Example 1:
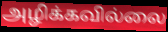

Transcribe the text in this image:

அழிக்கவில்லை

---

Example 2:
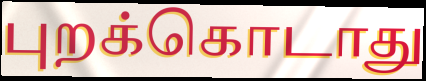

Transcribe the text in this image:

புறக்கொடாது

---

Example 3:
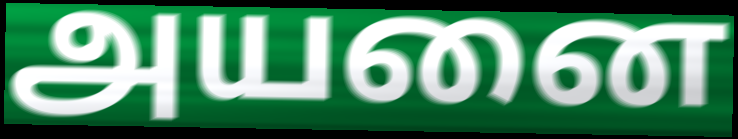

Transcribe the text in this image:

அயனை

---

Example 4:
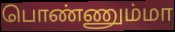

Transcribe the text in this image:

பொண்ணும்மா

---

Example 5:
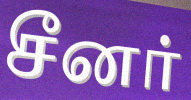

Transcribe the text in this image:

சீனர்